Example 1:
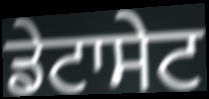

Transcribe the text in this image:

ਡੇਟਾਸੇਟ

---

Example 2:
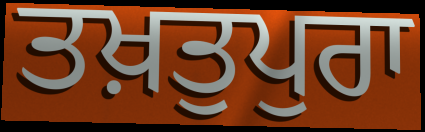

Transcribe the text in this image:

ਤਖ਼ਤੁਪੁਰਾ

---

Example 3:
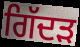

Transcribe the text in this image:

ਗਿੱਦਡ਼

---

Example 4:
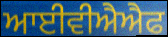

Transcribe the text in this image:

ਆਈਵੀਐਐਫ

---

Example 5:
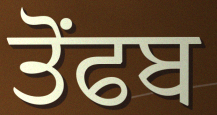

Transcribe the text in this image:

ਤੋਂਫਬ